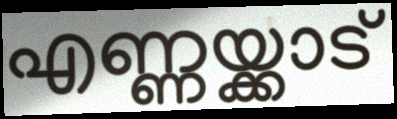
എണ്ണയ്ക്കാട്